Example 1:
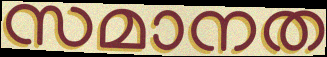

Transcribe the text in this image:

സമാനത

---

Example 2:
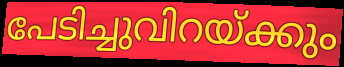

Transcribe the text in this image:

പേടിച്ചുവിറയ്ക്കും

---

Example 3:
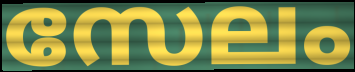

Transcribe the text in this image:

സേലം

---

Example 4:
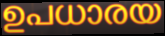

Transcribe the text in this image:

ഉപധാരയ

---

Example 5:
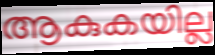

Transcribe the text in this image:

ആകുകയില്ല